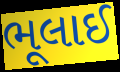
ભૂલાઈ